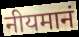
नीयमानं